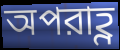
অপরাহ্ণ